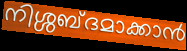
നിശ്ശബ്ദമാക്കാൻ